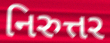
નિરુત્તર